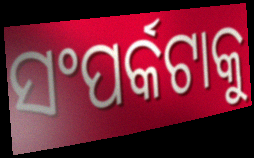
ସଂପର୍କଟାକୁ